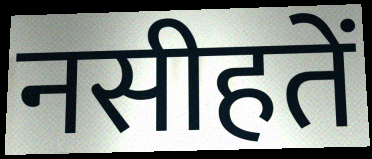
नसीहतें